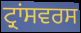
ਟ੍ਰਾਂਸਵਰਸ